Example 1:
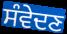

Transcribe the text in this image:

ਸੰਵੇਦਣ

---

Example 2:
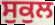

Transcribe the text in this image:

ਸੁਕੁਲ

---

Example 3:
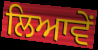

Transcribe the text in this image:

ਲਿਆਵੇਂ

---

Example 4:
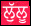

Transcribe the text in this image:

ਲੁੱਲੂ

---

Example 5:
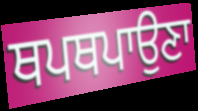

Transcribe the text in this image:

ਥਪਥਪਾਉਣਾ